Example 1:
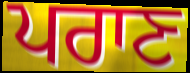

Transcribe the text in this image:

ਪਰਾਣ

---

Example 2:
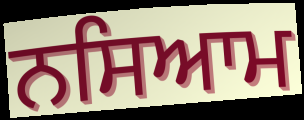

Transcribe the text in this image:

ਨਸਿਆਮ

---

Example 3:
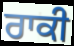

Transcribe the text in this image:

ਰਾਕੀ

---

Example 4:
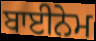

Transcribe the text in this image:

ਬਾਈਨੇਮ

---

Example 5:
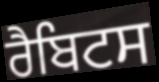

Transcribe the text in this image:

ਰੈਬਿਟਸ